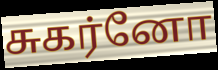
சுகர்னோ